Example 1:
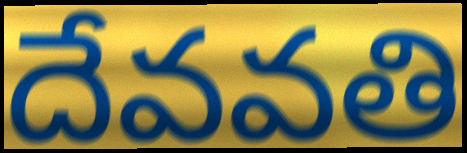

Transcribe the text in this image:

దేవవతి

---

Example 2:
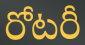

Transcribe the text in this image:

రోటరీ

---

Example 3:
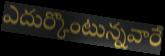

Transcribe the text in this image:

ఎదుర్కొంటున్నవారే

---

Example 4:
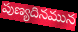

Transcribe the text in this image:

పుణ్యదినమున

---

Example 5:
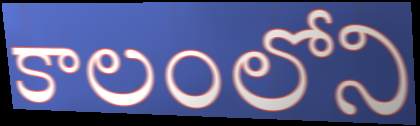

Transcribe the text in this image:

కాలంలోని